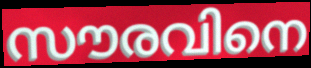
സൗരവിനെ